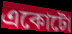
একোটো